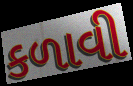
કળાવી